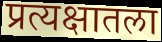
प्रत्यक्षातला